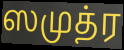
ஸமுத்ர